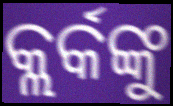
କ୍ଲର୍କଙ୍କୁ